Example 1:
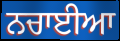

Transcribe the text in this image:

ਨਚਾਈਆ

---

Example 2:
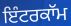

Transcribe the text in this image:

ਇੰਟਰਕਾੱਮ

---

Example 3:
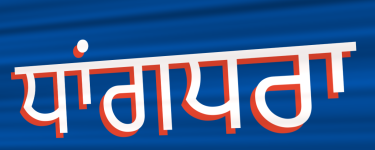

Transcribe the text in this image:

ਧਾਂਗਧਰਾ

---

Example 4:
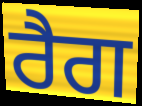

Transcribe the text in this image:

ਰੈਗ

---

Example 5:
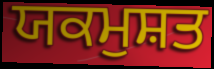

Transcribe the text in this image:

ਯਕਮੁਸ਼ਤ